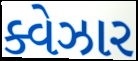
ક્વેઝાર